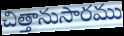
చిత్తానుసారము